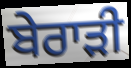
ਬੇਰਾੜੀ